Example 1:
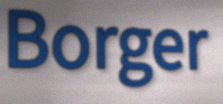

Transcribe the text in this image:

Borger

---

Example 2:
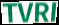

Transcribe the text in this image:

TVRI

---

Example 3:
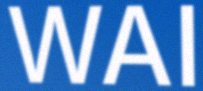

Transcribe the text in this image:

WAI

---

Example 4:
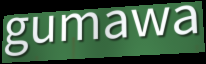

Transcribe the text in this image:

gumawa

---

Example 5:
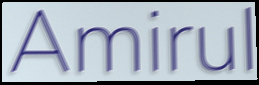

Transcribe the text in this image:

Amirul